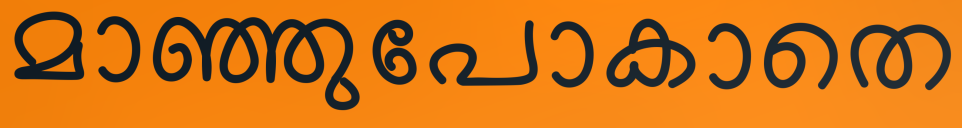
മാഞ്ഞുപോകാതെ